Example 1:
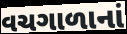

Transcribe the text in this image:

વચગાળાનાં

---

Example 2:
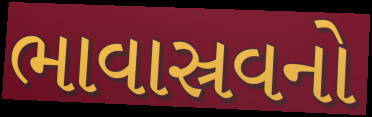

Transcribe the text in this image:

ભાવાસ્રવનો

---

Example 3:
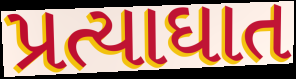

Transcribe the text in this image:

પ્રત્યાઘાત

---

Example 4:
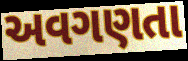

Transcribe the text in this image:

અવગણતા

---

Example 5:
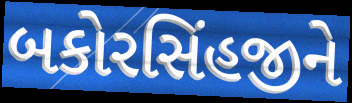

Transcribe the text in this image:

બકોરસિંહજીને